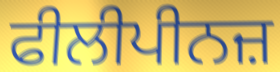
ਫੀਲੀਪੀਨਜ਼